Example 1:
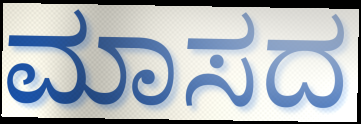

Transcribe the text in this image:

ಮಾಸದ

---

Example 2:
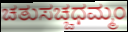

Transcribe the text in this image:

ಚತುಸಚ್ಚಧಮ್ಮಂ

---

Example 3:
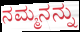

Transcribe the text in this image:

ನಮ್ಮನನ್ನು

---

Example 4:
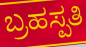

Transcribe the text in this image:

ಬ್ರಹಸ್ಪತಿ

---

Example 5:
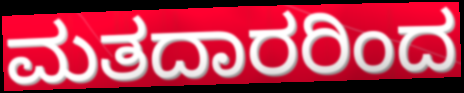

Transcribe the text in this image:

ಮತದಾರರಿಂದ